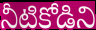
నీటికోడిని